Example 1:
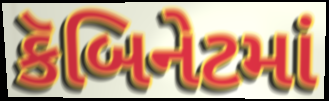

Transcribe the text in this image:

કૅબિનેટમાં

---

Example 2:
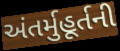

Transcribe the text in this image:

અંતર્મુહૂર્તની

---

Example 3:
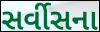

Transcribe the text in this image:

સર્વીસના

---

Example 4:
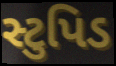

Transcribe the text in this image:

સ્ટુપિડ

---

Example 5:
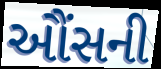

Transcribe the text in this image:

ઔંસની